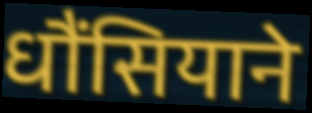
धौंसियाने